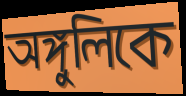
অঙ্গুলিকে